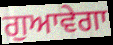
ਗੁਆਵੇਗਾ